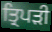
ਤ੍ਰਿਪਡ਼ੀ